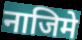
नाजिमे